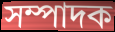
সম্পাদক